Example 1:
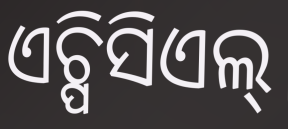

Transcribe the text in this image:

ଏଚ୍ପିସିଏଲ୍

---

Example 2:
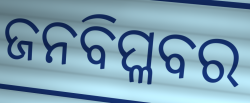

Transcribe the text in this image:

ଜନବିପ୍ଳବର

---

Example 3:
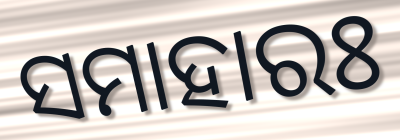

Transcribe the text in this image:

ସମାହାରଃ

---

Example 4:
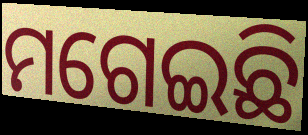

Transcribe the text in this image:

ମଗେଇଛି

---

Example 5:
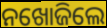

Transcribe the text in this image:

ନଖୋଜିଲେ